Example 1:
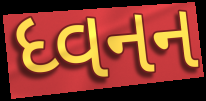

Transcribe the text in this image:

ધ્વનન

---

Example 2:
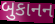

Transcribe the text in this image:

બુકાનન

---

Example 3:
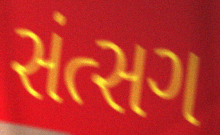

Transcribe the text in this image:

સંત્સગ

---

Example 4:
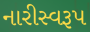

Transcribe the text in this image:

નારીસ્વરૂપ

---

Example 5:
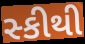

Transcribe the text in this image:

સ્કીથી